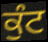
ਕੁੰਟ